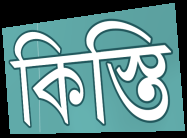
কিস্তি